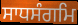
ਸਾਧਸੰਗਮਿ